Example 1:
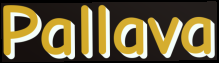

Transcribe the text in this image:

Pallava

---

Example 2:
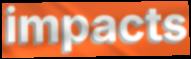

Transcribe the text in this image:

impacts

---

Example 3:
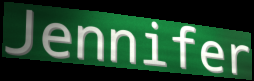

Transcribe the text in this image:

Jennifer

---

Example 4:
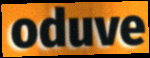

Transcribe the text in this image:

oduve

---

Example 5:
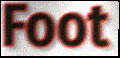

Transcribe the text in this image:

Foot